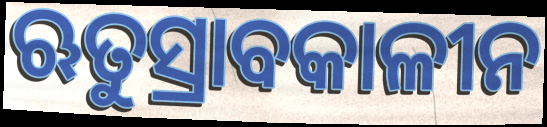
ଋତୁସ୍ରାବକାଳୀନ